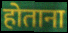
होताना